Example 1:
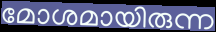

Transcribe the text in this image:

മോശമായിരുന്ന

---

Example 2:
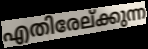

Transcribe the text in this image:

എതിരേല്ക്കുന്ന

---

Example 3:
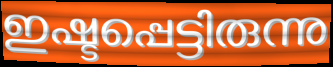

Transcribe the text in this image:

ഇഷ്ടപ്പെട്ടിരുന്നു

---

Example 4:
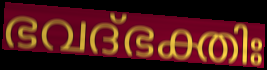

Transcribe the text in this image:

ഭവദ്ഭക്തിഃ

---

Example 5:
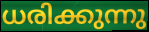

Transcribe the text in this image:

ധരിക്കുന്നു